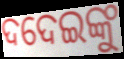
ଦଦେଇଙ୍କୁ